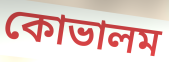
কোভালম